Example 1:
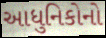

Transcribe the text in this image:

આધુનિકોનો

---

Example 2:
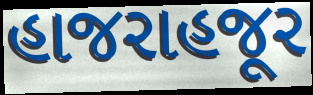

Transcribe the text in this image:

હાજરાહજૂર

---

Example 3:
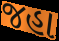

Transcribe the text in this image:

જહા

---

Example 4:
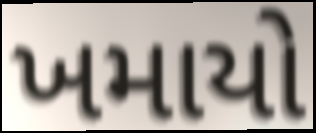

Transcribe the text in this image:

ખમાયો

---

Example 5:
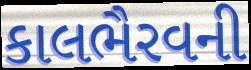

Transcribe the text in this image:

કાલભૈરવની